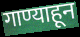
गाण्याहून